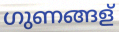
ഗുണങ്ങള്